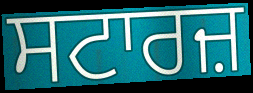
ਸਟਾਰਜ਼